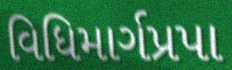
વિધિમાર્ગપ્રપા